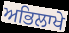
ਅਭਿਲਾਖੇ